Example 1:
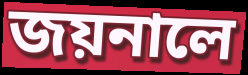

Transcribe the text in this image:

জয়নালে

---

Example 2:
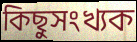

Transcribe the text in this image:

কিছুসংখ্যক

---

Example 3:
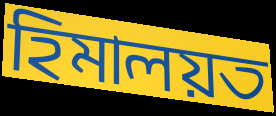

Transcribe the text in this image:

হিমালয়ত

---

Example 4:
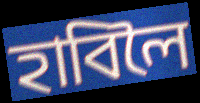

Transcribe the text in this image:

হাবিলৈ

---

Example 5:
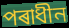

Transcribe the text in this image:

পৰাধীন